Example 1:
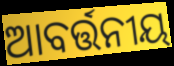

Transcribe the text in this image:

ଆବର୍ତ୍ତନୀୟ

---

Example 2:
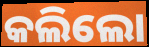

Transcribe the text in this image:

କଲିଲୋ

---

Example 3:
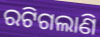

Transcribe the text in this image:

ରଟିଗଲାଣି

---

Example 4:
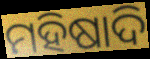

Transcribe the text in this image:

ମହିଷାଦି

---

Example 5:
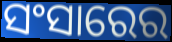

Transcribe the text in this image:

ସଂସାରେର